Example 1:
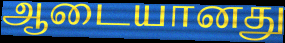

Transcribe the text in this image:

ஆடையானது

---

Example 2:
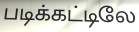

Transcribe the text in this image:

படிக்கட்டிலே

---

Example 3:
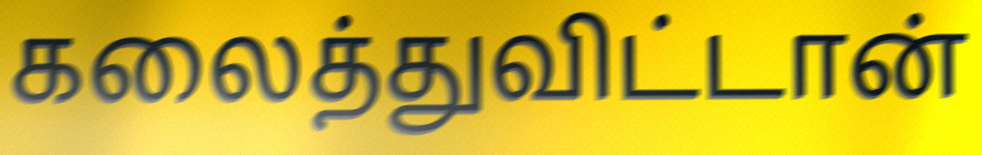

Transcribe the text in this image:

கலைத்துவிட்டான்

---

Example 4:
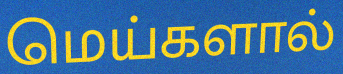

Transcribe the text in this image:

மெய்களால்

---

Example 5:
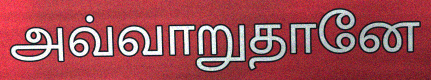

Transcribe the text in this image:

அவ்வாறுதானே